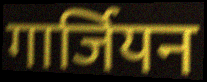
गार्जियन